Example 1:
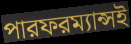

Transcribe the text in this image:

পারফরম্যান্সই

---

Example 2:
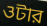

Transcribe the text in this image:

ওটার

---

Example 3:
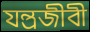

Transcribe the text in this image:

যন্ত্রজীবী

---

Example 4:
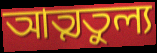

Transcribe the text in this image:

আত্মতুল্য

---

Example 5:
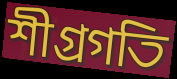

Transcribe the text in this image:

শীগ্রগতি